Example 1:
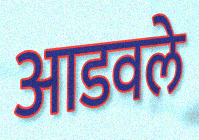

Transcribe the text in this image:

आडवले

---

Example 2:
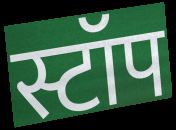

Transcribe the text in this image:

स्टॉप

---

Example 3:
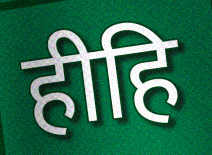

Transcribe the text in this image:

हीहि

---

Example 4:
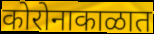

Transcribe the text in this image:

कोरोनाकाळात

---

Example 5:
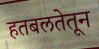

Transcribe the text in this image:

हतबलतेतून